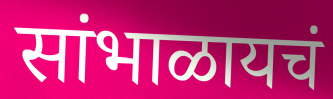
सांभाळायचं